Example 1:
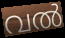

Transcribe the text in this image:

വൽ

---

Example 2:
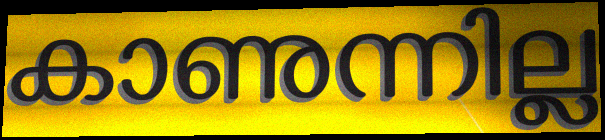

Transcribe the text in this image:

കാണുന്നില്ല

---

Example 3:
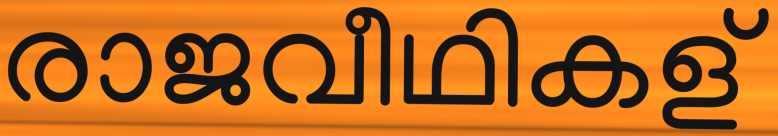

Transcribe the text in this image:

രാജവീഥികള്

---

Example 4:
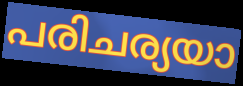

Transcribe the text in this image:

പരിചര്യയാ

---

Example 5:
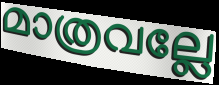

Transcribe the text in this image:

മാത്രവല്ലേ